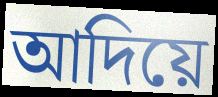
আদিয়ে